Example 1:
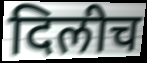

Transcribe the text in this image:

दिलीच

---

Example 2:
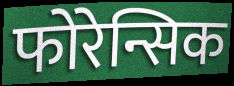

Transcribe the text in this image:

फोरेन्सिक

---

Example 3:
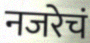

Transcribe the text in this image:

नजरेचं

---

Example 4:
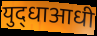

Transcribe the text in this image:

युद्धाआधी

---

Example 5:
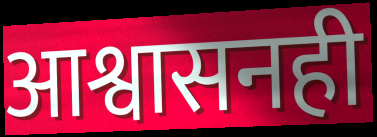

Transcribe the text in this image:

आश्वासनही